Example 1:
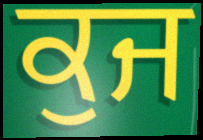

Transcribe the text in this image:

ਕੁਜ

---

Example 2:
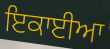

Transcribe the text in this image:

ਇਕਾਈਆ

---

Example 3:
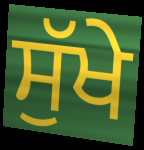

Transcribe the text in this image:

ਸੁੱਖੇ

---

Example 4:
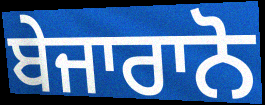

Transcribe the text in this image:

ਬੇਜਾਰਾਨੋ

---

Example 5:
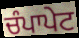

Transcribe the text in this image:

ਚੰਪਾਪੇਟ